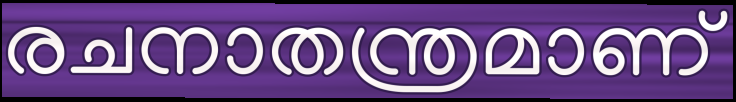
രചനാതന്ത്രമാണ്